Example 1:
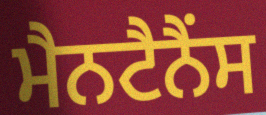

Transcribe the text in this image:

ਮੈਨਟੈਨੈਂਸ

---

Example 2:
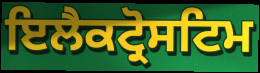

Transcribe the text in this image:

ਇਲੈਕਟ੍ਰੋਸਟਿਮ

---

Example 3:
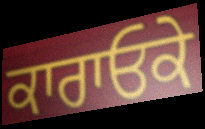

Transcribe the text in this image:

ਕਾਰਾਓਕੇ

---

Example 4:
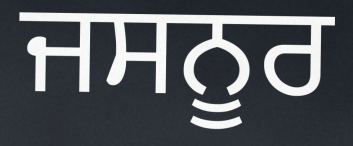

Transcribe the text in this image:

ਜਸਨੂਰ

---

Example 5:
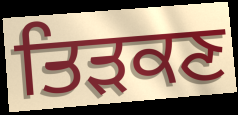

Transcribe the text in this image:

ਤਿੜਕਣ